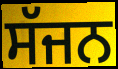
ਸੱਜਨ